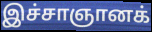
இச்சாஞானக்